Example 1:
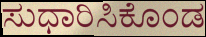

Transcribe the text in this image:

ಸುಧಾರಿಸಿಕೊಂಡ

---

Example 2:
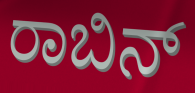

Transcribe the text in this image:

ರಾಬಿನ್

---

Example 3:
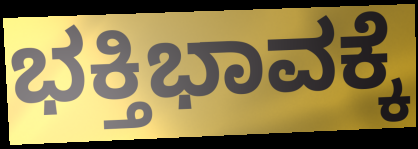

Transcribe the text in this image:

ಭಕ್ತಿಭಾವಕ್ಕೆ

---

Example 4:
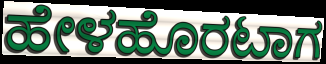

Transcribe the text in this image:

ಹೇಳಹೊರಟಾಗ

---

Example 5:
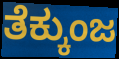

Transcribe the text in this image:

ತೆಕ್ಕುಂಜ